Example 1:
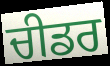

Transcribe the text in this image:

ਚੀਡਰ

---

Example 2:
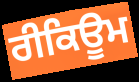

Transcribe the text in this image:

ਰੀਕਿਊਮ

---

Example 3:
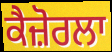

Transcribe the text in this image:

ਕੈਜ਼ੋਰਲਾ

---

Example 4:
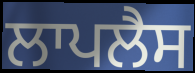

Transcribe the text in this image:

ਲਾਪਲੈਸ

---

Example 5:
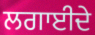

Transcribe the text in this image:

ਲਗਾਈਦੇ